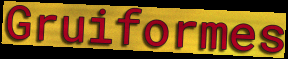
Gruiformes